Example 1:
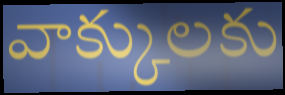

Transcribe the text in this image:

వాక్కులకు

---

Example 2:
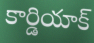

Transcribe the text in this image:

కార్డియాక్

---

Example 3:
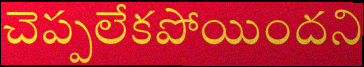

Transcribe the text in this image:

చెప్పలేకపోయిందని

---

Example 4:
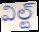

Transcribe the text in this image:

విల్ట్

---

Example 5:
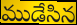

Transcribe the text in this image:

ముడేసిన